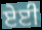
ਏਈ